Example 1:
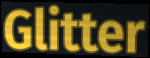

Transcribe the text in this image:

Glitter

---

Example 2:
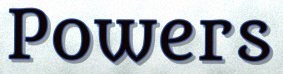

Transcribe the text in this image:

Powers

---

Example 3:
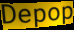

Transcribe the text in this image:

Depop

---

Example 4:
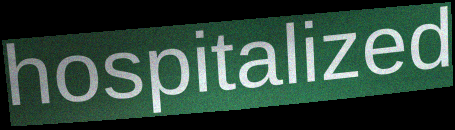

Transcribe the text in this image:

hospitalized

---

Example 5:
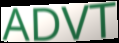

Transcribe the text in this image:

ADVT